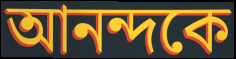
আনন্দকে